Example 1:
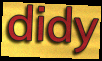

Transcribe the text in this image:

didy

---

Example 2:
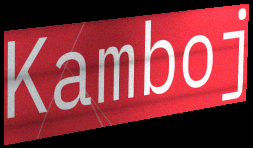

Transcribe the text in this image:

Kamboj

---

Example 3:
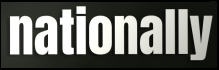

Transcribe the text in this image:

nationally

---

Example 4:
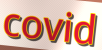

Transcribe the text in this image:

covid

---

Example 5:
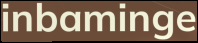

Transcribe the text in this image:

inbaminge